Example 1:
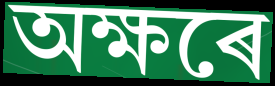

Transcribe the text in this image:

অক্ষৰে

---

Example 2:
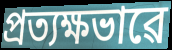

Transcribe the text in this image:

প্ৰত্যক্ষভাৱে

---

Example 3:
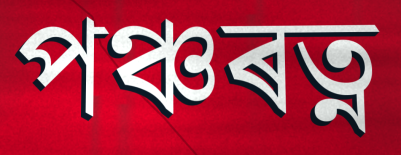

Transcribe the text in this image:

পঞ্চৰত্ন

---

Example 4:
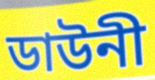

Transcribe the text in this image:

ডাউনী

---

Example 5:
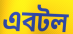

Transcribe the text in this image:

এবটল